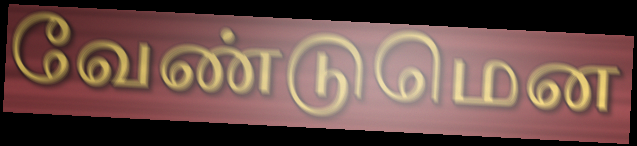
வேண்டுமென